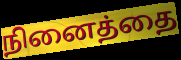
நினைத்தை